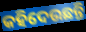
କହିଦେଉଛନ୍ତି